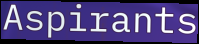
Aspirants